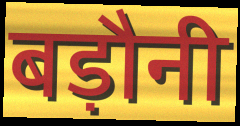
बड़ौनी